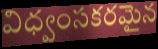
విధ్వంసకరమైన